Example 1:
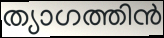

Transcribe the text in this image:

ത്യാഗത്തിൻ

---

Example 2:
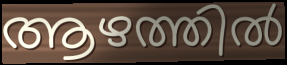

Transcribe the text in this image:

ആഴത്തിൽ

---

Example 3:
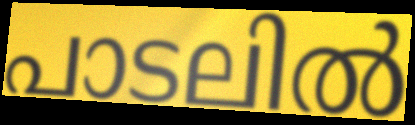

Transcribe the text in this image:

പാടലിൽ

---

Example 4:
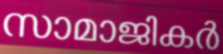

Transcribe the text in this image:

സാമാജികർ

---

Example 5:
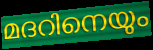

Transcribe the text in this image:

മദറിനെയും